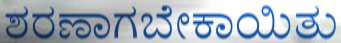
ಶರಣಾಗಬೇಕಾಯಿತು